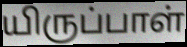
யிருப்பாள்